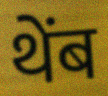
थेंब